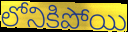
లోనికిపోయి